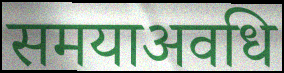
समयाअवधि